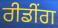
ਰੀਡੀਂਗ